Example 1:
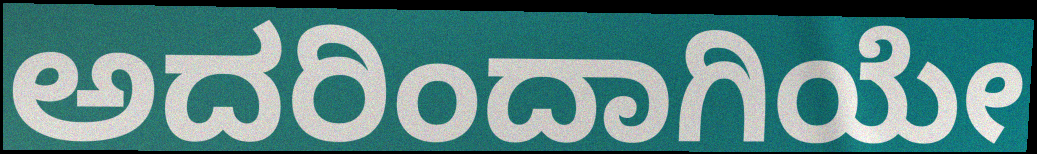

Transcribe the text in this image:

ಅದರಿಂದಾಗಿಯೇ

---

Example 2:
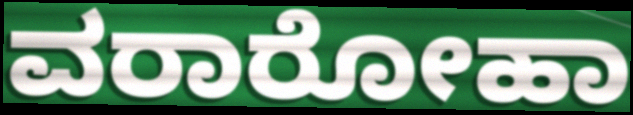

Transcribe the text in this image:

ವರಾರೋಹಾ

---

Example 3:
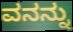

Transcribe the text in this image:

ವನನ್ನು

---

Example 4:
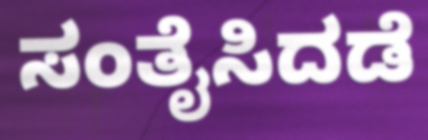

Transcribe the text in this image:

ಸಂತೈಸಿದಡೆ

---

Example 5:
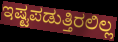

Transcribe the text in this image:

ಇಷ್ಟಪಡುತ್ತಿರಲಿಲ್ಲ